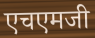
एचएमजी